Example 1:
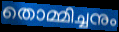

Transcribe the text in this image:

തൊമ്മിച്ചനും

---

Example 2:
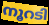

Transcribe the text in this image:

നൂറടി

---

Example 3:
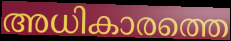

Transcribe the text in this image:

അധികാരത്തെ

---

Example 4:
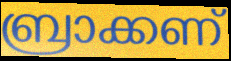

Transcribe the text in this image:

ബ്രാക്കണ്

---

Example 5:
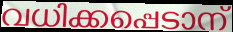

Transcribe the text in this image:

വധിക്കപ്പെടാന്